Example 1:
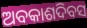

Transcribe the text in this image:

ଅବକାଶଦିବସ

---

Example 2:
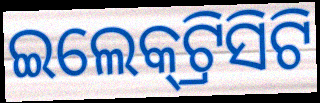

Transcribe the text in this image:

ଇଲେକ୍‌ଟ୍ରିସିଟି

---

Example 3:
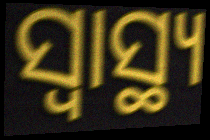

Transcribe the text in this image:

ସ୍ୱାସ୍ଥ୍ୟ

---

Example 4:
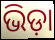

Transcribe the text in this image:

ଭିଡ଼ା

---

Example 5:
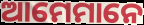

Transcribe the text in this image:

ଆମେମାନେ